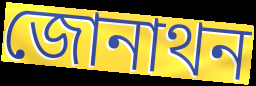
জোনাথন